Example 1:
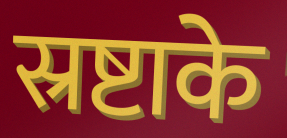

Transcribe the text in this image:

स्रष्टाके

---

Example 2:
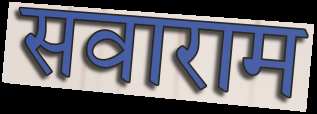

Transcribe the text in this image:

सवाराम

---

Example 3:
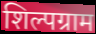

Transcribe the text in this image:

शिल्पग्राम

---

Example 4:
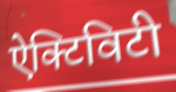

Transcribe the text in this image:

ऐक्टिविटी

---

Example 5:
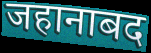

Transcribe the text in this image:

जहानाबद